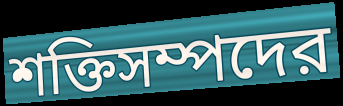
শক্তিসম্পদের